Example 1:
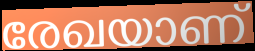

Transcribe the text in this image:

രേഖയാണ്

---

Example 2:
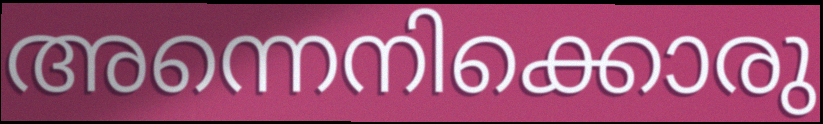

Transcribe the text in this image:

അന്നെനിക്കൊരു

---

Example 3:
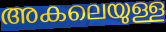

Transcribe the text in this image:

അകലെയുള്ള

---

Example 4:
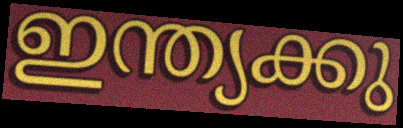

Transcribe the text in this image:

ഇന്ത്യക്കു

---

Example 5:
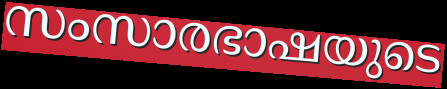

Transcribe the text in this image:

സംസാരഭാഷയുടെ